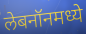
लेबनॉनमध्ये